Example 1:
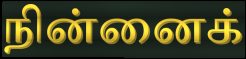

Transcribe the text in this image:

நின்னைக்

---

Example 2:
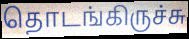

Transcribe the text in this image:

தொடங்கிருச்சு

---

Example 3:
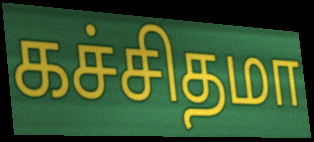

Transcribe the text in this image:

கச்சிதமா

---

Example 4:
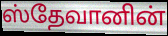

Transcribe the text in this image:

ஸ்தேவானின்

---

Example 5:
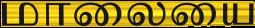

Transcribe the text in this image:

மாலையை